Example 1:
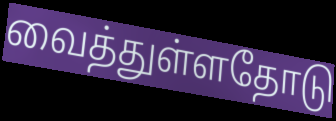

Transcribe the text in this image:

வைத்துள்ளதோடு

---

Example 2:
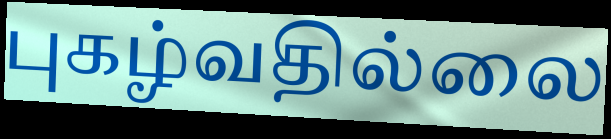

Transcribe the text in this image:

புகழ்வதில்லை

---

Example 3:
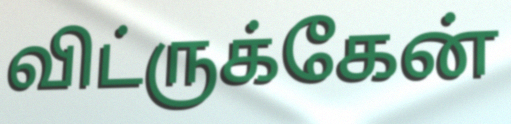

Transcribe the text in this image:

விட்ருக்கேன்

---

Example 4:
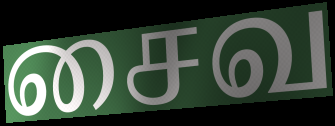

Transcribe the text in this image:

சைவ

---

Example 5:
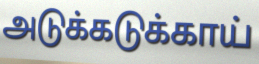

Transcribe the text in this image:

அடுக்கடுக்காய்